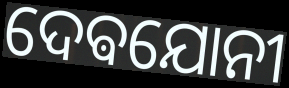
ଦେଵଯୋନୀ